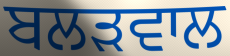
ਬਲੜਵਾਲ